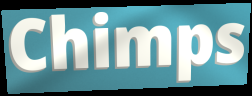
Chimps